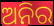
ଅନିର